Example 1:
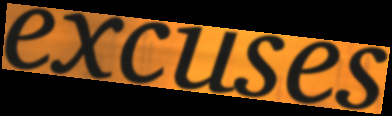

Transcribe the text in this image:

excuses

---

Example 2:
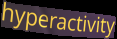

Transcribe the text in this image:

hyperactivity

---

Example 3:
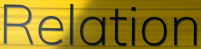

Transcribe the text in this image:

Relation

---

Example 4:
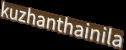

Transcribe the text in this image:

kuzhanthainila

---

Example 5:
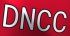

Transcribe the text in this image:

DNCC